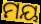
ମୟ